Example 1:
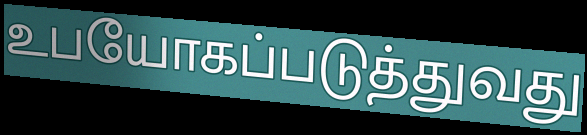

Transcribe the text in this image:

உபயோகப்படுத்துவது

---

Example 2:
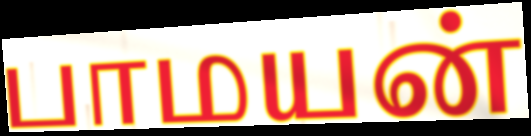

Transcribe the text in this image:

பாமயன்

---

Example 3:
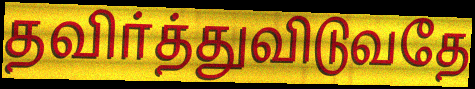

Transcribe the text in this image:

தவிர்த்துவிடுவதே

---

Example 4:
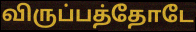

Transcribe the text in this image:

விருப்பத்தோடே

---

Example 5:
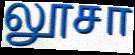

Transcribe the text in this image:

லூசா